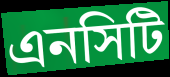
এনসিটি